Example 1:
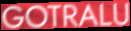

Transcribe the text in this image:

GOTRALU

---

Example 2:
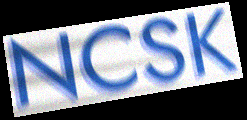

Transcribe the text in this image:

NCSK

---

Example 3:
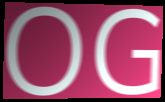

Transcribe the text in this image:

OG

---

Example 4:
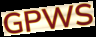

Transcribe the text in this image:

GPWS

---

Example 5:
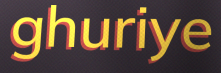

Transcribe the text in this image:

ghuriye